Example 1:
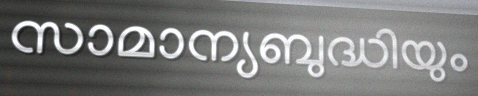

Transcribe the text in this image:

സാമാന്യബുദ്ധിയും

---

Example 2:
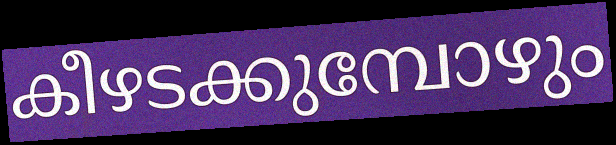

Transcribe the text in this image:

കീഴടക്കുമ്പോഴും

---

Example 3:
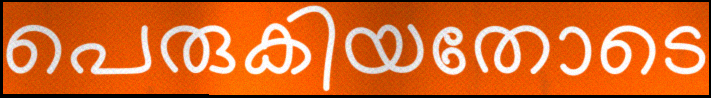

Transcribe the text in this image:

പെരുകിയതോടെ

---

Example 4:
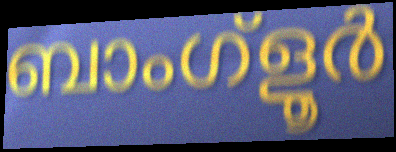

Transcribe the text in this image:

ബാംഗ്ളൂർ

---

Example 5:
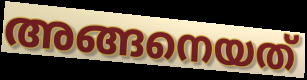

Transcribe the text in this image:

അങ്ങനെയത്